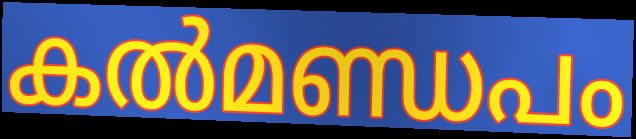
കൽമണ്ഡപം